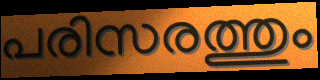
പരിസരത്തും